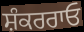
ਸ਼ੰਕਰਰਾਓ